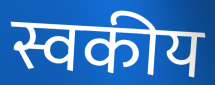
स्वकीय